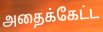
அதைக்கேட்ட